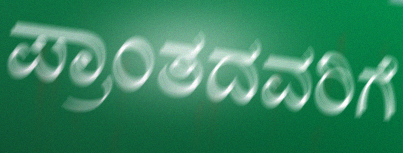
ಪ್ರಾಂತದವರಿಗೆ